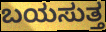
ಬಯಸುತ್ತ